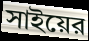
সাইয়ের